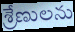
శ్రేణులను